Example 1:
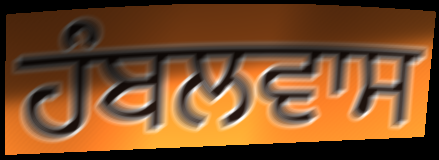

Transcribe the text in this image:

ਹੰਬਲਵਾਸ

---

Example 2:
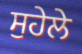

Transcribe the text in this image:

ਸੁਹੇਲੇ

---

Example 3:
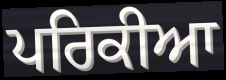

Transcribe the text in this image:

ਪਰਿਕੀਆ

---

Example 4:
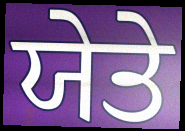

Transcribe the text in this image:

ਯੇਤੇ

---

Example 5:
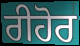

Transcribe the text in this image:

ਰੀਹੋਰ